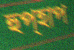
হুপ্হাপ